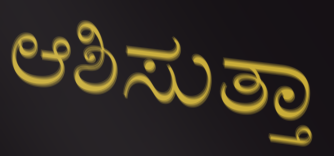
ಆಶಿಸುತ್ತಾ